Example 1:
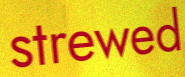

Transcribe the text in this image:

strewed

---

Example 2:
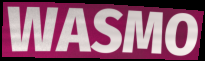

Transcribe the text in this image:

WASMO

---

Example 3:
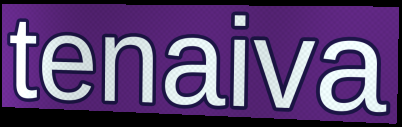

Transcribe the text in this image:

tenaiva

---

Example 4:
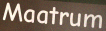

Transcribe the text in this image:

Maatrum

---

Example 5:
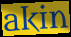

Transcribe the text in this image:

akin